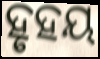
ହୃହୟ